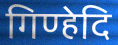
गिण्हेदि